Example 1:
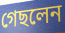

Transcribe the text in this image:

গেছলেন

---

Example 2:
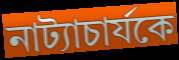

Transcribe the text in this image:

নাট্যাচার্যকে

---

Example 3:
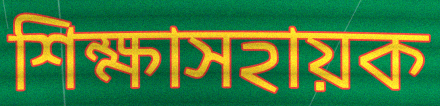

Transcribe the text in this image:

শিক্ষাসহায়ক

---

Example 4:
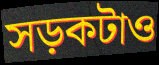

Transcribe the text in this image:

সড়কটাও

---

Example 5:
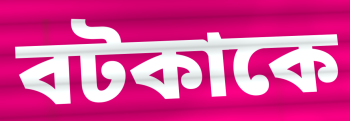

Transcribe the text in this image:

বটকাকে